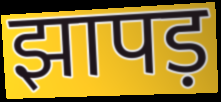
झापड़